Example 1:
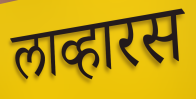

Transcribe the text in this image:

लाव्हारस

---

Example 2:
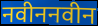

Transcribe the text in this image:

नवीननवीन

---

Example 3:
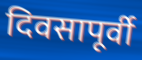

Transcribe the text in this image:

दिवसापूर्वी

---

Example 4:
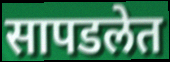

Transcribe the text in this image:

सापडलेत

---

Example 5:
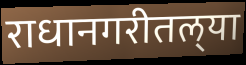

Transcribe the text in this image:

राधानगरीतल्या